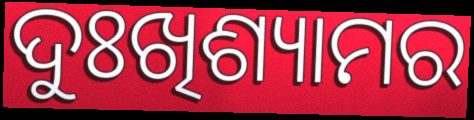
ଦୁଃଖିଶ୍ୟାମର